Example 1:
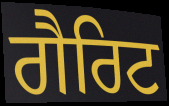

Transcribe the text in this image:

ਗੈਰਿਟ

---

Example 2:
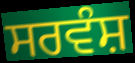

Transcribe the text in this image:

ਸਰਵੰਸ਼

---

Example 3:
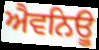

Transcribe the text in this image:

ਐਵਨਿਊ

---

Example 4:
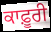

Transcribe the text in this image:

ਕਾਫ਼ੂਰੀ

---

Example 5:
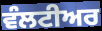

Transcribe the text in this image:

ਵੰਲਟੀਅਰ